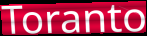
Toranto